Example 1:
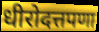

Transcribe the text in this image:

धीरोदत्तपणा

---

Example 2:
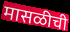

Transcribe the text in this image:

मासळीची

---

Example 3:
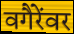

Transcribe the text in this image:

वगैरेंवर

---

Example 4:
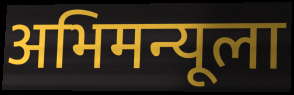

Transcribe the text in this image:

अभिमन्यूला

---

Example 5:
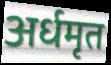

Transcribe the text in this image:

अर्धमृत